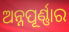
ଅନ୍ନପୂର୍ଣ୍ଣାର